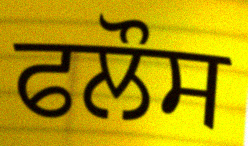
ਫਲੌਸ